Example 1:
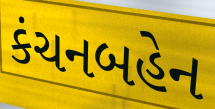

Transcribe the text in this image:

કંચનબહેન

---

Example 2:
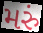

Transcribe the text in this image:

મરું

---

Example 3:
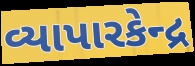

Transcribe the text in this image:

વ્યાપારકેન્દ્ર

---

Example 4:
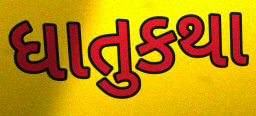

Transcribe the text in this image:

ધાતુકથા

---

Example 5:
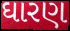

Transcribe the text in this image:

ઘારણ